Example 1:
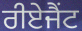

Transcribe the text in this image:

ਰੀਏਜੈਂਟ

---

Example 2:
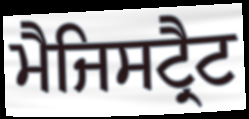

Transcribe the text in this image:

ਮੈਜਿਸਟ੍ਰੈਟ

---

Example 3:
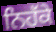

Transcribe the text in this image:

ਨਿਹੱਕੇ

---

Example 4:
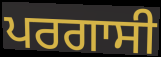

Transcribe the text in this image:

ਪਰਗਾਸੀ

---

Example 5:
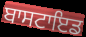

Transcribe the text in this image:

ਬਾਸਟਾਇਡ